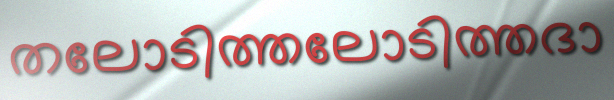
തലോടിത്തലോടിത്തദാ